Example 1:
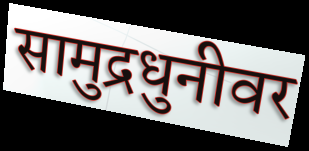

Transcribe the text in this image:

सामुद्रधुनीवर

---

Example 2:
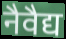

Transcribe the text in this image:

नैवैद्य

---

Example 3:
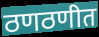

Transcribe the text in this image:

ठणठणीत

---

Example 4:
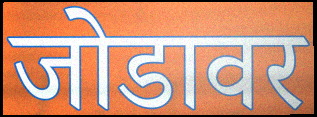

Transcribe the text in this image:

जोडावर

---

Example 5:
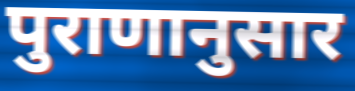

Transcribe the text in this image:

पुराणानुसार